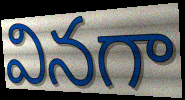
వినగా